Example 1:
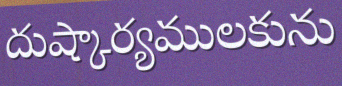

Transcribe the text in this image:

దుష్కార్యములకును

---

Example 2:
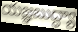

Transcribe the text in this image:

యజ్ఞబుద్ధ్యా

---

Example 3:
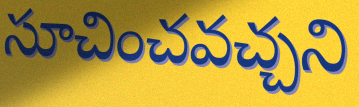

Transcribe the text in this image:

సూచించవచ్చని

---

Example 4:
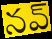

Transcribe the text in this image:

నవ్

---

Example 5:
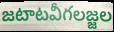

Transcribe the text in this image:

జటాటవీగలజ్జల